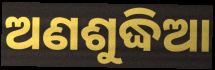
ଅଣଶୁଦ୍ଧିଆ